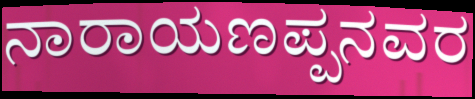
ನಾರಾಯಣಪ್ಪನವರ